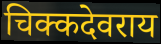
चिक्कदेवराय